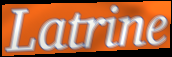
Latrine